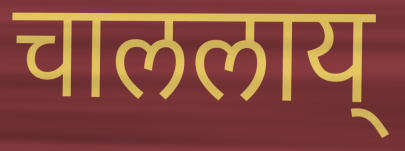
चाललाय्